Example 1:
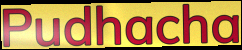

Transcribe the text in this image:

Pudhacha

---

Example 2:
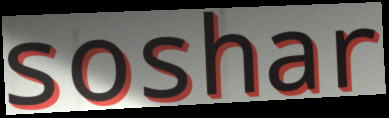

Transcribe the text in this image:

soshar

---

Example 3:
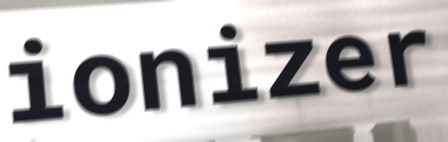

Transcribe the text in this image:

ionizer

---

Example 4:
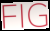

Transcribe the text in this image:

FIG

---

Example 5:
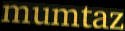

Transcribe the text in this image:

mumtaz